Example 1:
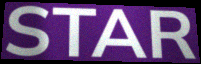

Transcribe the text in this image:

STAR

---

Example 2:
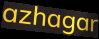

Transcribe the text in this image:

azhagar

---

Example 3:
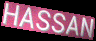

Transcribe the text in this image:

HASSAN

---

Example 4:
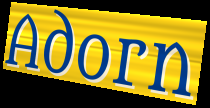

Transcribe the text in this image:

Adorn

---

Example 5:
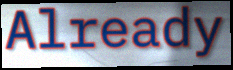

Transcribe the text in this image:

Already